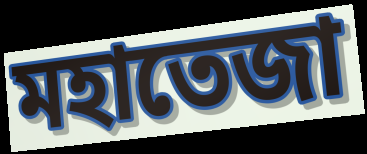
মহাতেজা